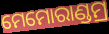
ମେମୋରାଣ୍ଡମ୍ର